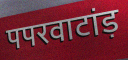
पपरवाटांड़